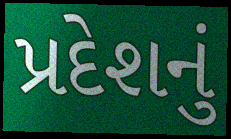
પ્રદેશનું